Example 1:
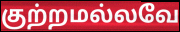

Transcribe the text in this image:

குற்றமல்லவே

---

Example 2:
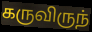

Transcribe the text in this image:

கருவிருந்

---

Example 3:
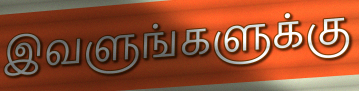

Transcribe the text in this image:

இவளுங்களுக்கு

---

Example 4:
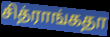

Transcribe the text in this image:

சித்ராங்கதா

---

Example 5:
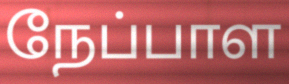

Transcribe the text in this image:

நேப்பாள